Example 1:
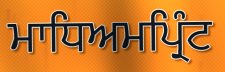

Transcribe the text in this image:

ਮਾਧਿਅਮਪ੍ਰਿੰਟ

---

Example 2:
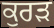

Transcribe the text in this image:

ਕੁਰੜ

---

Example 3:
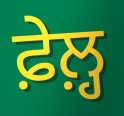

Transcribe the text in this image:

ਫ਼ੇਲ਼੍ਹ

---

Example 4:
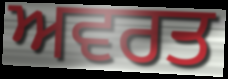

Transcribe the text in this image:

ਅਵਰਤ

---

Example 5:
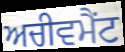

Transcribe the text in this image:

ਅਚੀਵਮੈਂਟ